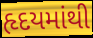
હૃદયમાંથી